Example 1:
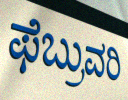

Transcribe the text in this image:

ಫೆಬ್ರುವರಿ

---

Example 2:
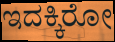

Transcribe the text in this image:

ಇದಕ್ಕಿರೋ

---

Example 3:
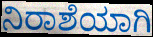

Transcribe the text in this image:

ನಿರಾಶೆಯಾಗಿ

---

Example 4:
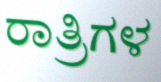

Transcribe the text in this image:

ರಾತ್ರಿಗಳ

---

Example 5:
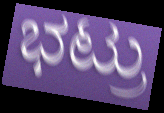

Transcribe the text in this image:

ಭಟ್ರು